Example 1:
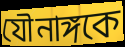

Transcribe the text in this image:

যৌনাঙ্গকে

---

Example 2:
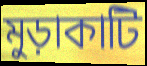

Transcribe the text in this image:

মুড়াকাটি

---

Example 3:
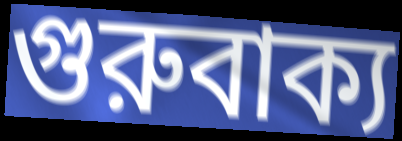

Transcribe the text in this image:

গুরুবাক্য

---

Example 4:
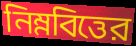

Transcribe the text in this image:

নিম্নবিত্তের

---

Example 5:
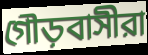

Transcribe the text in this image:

গৌড়বাসীরা